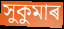
সুকুমাৰ